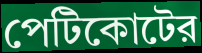
পেটিকোটের